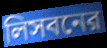
লিসবনের